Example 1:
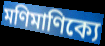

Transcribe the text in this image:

মণিমাণিক্যে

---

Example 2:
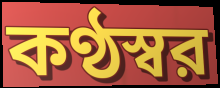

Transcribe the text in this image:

কণ্ঠস্বর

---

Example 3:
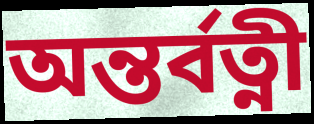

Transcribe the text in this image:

অন্তর্বত্নী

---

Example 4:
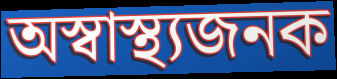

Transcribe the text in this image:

অস্বাস্থ্যজনক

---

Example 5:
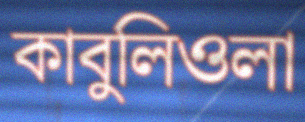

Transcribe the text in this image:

কাবুলিওলা